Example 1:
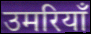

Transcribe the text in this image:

उमरियाँ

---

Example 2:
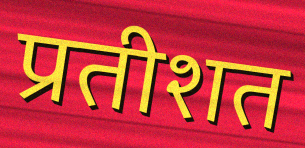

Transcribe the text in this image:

प्रतीशत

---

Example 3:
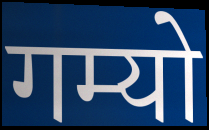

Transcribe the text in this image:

गम्यो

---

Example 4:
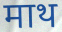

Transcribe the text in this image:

माथ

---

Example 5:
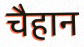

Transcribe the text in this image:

चैहान